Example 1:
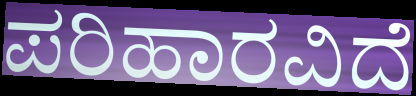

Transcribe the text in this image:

ಪರಿಹಾರವಿದೆ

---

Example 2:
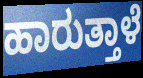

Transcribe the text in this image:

ಹಾರುತ್ತಾಳೆ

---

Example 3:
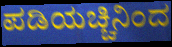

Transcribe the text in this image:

ಪಡಿಯಚ್ಚಿನಿಂದ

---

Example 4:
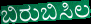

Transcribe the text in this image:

ಬಿರುಬಿಸಿಲ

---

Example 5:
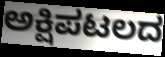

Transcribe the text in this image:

ಅಕ್ಷಿಪಟಲದ